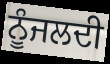
ਨੂੰਜਲਦੀ